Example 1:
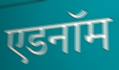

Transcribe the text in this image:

एडनॉम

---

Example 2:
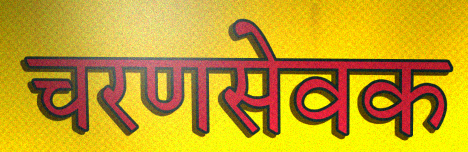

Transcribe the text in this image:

चरणसेवक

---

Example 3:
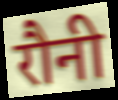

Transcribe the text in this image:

रौनी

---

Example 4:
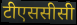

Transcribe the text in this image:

टीएससीसी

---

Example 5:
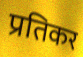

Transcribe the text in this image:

प्रतिकर